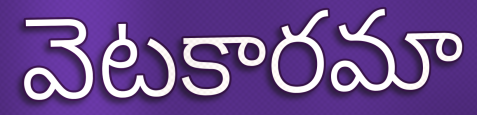
వెటకారమా